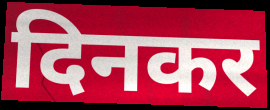
दिनकर